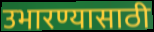
उभारण्यासाठी